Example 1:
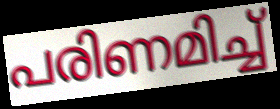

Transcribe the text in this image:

പരിണമിച്ച്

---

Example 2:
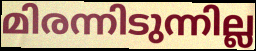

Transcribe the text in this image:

മിരന്നിടുന്നില്ല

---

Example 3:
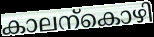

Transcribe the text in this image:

കാലന്കൊഴി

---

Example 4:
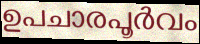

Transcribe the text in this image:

ഉപചാരപൂർവം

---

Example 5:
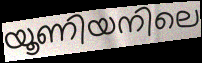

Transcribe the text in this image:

യൂണിയനിലെ